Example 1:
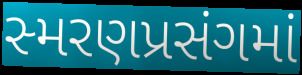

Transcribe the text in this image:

સ્મરણપ્રસંગમાં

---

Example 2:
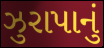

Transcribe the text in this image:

ઝુરાપાનું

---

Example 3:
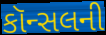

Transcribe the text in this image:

કૉન્સલની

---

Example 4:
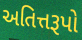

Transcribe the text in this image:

અતિત્તરૂપો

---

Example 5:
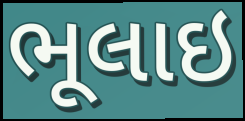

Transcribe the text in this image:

ભૂલાઇ